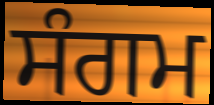
ਸੰਗਮ